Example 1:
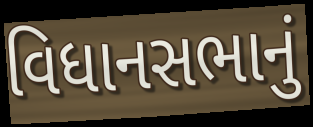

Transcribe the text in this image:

વિધાનસભાનું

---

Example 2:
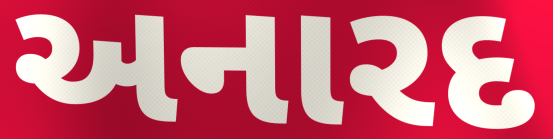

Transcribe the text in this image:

અનારદ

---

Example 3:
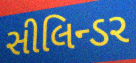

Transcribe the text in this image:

સીલિન્ડર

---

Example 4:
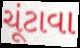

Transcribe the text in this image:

ચૂંટાવા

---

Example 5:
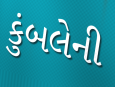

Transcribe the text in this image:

કુંબલેની